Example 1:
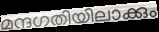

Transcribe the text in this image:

മന്ദഗതിയിലാക്കും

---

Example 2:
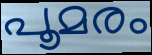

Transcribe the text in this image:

പൂമരം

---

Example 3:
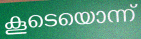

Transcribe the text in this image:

കൂടെയൊന്ന്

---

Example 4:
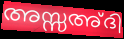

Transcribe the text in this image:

അസ്സഅ്ദി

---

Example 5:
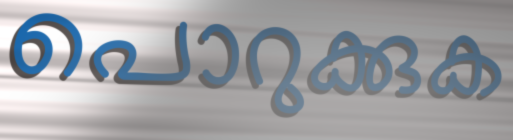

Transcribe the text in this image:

പൊറുക്കുക